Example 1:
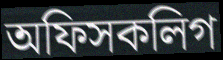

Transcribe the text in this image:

অফিসকলিগ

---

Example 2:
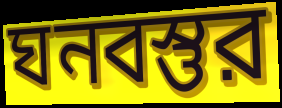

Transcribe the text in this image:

ঘনবস্তুর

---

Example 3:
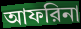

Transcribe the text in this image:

আফরিনা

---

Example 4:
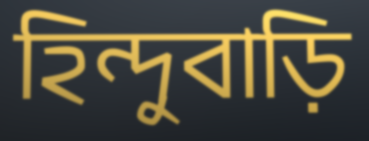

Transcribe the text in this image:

হিন্দুবাড়ি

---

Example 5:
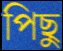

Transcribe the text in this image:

পিছু